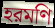
হরমণি